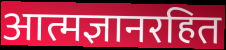
आत्मज्ञानरहित